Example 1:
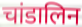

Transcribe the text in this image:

चांडालिन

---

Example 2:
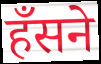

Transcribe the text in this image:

हँसने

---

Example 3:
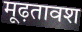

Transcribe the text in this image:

मूढ़तावश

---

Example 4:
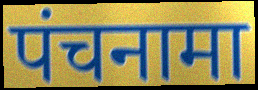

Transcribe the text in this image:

पंचनामा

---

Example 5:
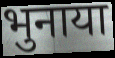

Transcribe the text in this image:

भुनाया